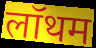
लॉथम